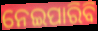
ନେଇପାରିବି